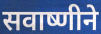
सवाष्णीने